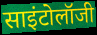
साइंटोलॉजी